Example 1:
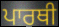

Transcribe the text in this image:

ਪਾਰਥੀ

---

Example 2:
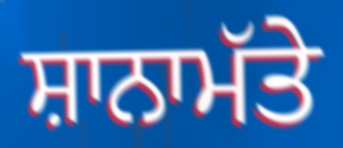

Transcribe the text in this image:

ਸ਼ਾਨਾਮੱਤੇ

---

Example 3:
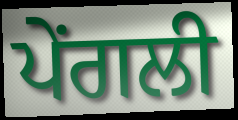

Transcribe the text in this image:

ਪੇਂਗਲੀ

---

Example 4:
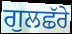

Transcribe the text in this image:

ਗੁਲਛੱਰੇ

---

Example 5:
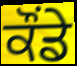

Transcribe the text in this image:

ਕੌਂਡੇ